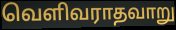
வெளிவராதவாறு